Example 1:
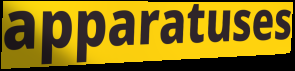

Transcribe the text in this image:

apparatuses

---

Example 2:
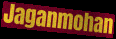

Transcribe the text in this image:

Jaganmohan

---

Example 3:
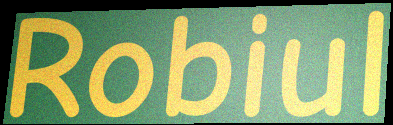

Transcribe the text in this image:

Robiul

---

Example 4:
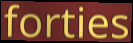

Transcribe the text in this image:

forties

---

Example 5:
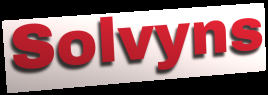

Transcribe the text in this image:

Solvyns